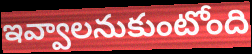
ఇవ్వాలనుకుంటోంది